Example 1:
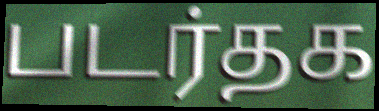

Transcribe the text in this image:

படர்தக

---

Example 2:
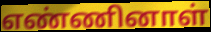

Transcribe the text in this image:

எண்ணினாள்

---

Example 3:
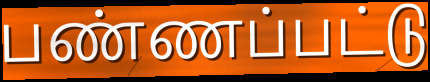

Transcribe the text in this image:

பண்ணப்பட்டு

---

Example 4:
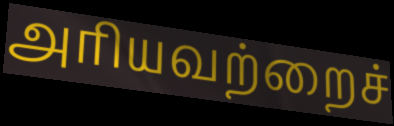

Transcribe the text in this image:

அரியவற்றைச்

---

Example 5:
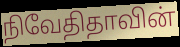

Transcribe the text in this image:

நிவேதிதாவின்